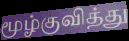
மூழ்குவித்து